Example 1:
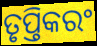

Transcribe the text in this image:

ତୃପ୍ତିକରଂ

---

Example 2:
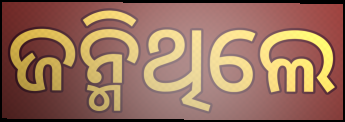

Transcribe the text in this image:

ଜନ୍ମିଥିଲେ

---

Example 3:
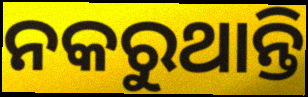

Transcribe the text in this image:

ନକରୁଥାନ୍ତି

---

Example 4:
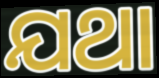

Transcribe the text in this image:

ଯଥା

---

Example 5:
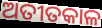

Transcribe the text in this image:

ଅତୀତକାଳ